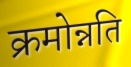
क्रमोन्नति